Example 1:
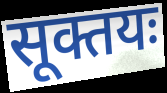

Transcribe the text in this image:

सूक्तयः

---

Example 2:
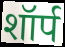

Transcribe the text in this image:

शॉर्प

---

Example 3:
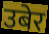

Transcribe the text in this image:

उबेर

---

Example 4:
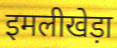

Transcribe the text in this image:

इमलीखेड़ा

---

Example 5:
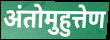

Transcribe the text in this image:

अंतोमुहुत्तेण